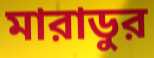
মারাডুর